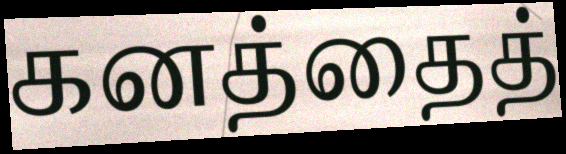
கனத்தைத்